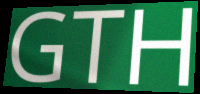
GTH